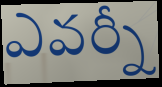
ఎవర్నీ